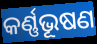
କର୍ଣ୍ଣଭୂଷଣ